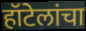
हॉटेलांचा